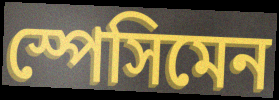
স্পেসিমেন